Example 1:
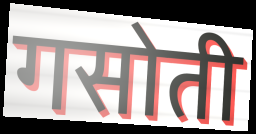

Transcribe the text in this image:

गसोती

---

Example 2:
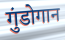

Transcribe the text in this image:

गुंडोगान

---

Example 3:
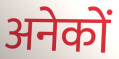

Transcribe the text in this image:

अनेकों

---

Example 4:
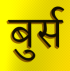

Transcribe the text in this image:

बुर्स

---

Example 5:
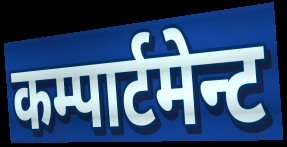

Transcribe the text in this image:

कम्पार्टमेन्ट